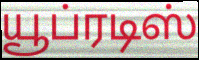
யூப்ரடிஸ்